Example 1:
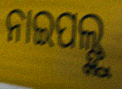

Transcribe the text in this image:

ନାଇପଲ୍ଙ୍କୁ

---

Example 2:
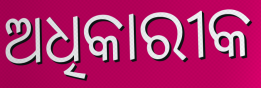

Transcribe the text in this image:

ଅଧିକାରୀକ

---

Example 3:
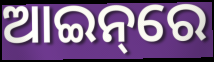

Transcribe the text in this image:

ଆଇନ୍‌ରେ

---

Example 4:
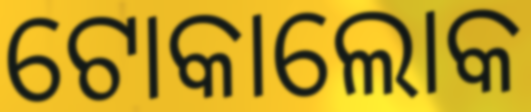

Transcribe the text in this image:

ଟୋକାଲୋକ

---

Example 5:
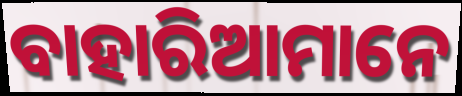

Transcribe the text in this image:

ବାହାରିଆମାନେ